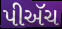
પીઍચ